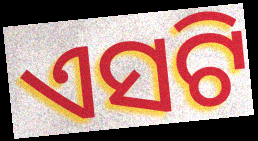
ଏସଟି